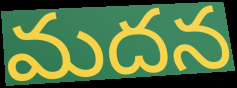
మదన